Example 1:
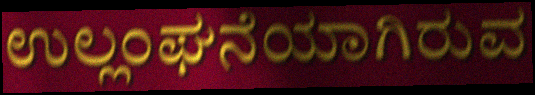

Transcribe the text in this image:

ಉಲ್ಲಂಘನೆಯಾಗಿರುವ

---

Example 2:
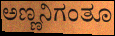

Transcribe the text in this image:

ಅಣ್ಣನಿಗಂತೂ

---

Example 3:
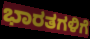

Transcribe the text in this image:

ಭಾರತಗಳಿಗೆ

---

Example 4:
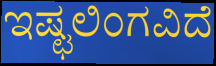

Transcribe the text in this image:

ಇಷ್ಟಲಿಂಗವಿದೆ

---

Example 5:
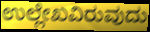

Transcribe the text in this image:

ಉಲ್ಲೇಖವಿರುವುದು